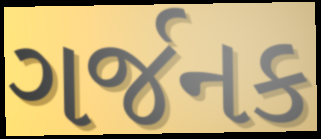
ગર્જનક